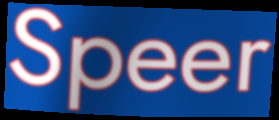
Speer